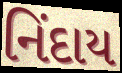
નિંદાય